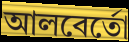
আলবের্তো